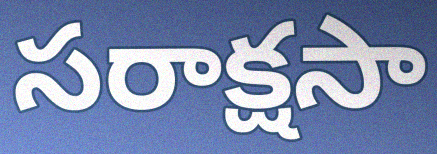
సరాక్షసా